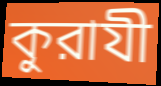
কুরাযী